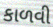
કાળવી